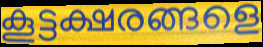
കൂട്ടക്ഷരങ്ങളെ